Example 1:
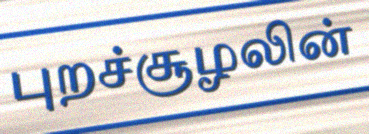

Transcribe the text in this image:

புறச்சூழலின்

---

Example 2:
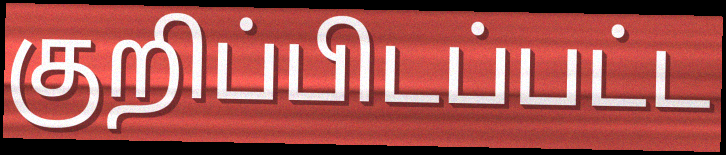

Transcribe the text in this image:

குறிப்பிடப்பட்ட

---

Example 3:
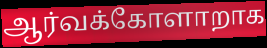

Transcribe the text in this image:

ஆர்வக்கோளாறாக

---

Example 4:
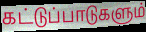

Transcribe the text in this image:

கட்டுப்பாடுகளும்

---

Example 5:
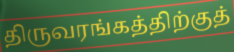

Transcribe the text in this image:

திருவரங்கத்திற்குத்